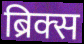
ब्रिक्‍स